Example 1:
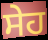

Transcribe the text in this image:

ਸੇਹ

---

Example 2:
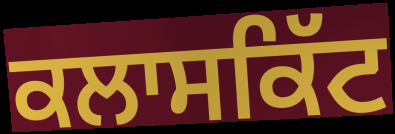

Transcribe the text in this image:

ਕਲਾਸਕਿੱਟ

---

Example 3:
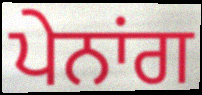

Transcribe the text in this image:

ਪੇਨਾਂਗ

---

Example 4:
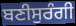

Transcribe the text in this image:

ਬਣੀਸੁਰੰਗੀ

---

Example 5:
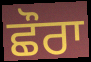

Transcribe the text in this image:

ਛੌਰਾ